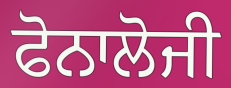
ਫੋਨਾਲੋਜੀ